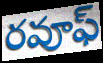
రవూఫ్